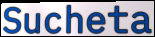
Sucheta